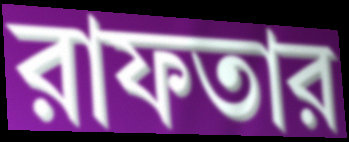
রাফতার